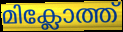
മിക്ലോത്ത്